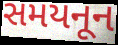
સમયનૂન